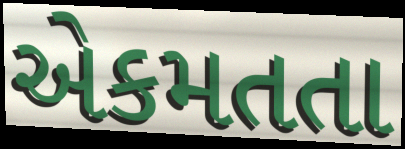
એકમતતા